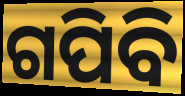
ଗପିବି